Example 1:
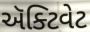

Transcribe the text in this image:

ઍક્ટિવેટ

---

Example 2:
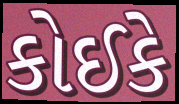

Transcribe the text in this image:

કોઈકે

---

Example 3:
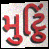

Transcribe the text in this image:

મુટ્ઠિં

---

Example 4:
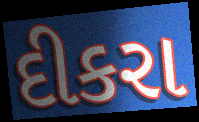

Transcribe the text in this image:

દીકરા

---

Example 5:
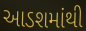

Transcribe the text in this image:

આડશમાંથી